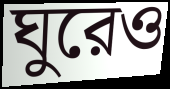
ঘুরেও